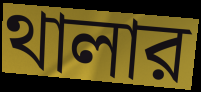
থালার